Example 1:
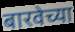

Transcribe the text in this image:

बारवेच्या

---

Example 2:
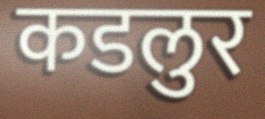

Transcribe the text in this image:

कडलुर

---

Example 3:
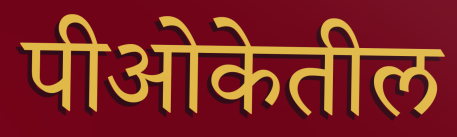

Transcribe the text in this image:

पीओकेतील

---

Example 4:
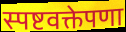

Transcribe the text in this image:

स्पष्टवक्तेपणा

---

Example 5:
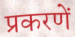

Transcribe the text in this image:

प्रकरणें